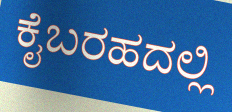
ಕೈಬರಹದಲ್ಲಿ